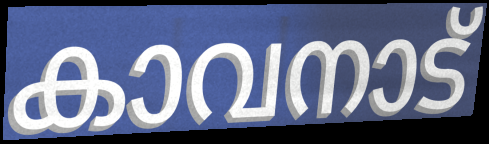
കാവനാട്